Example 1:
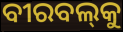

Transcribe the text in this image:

ବୀରବଲ୍‌କୁ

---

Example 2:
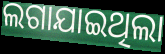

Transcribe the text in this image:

ଲଗାଯାଇଥିଲା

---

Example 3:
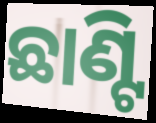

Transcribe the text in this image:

ଛାଣ୍ଟି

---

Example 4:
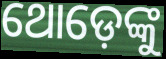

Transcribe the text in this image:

ଥୋଡ଼େଙ୍କୁ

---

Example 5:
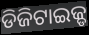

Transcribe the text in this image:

ଡିଜିଟାଇଜ୍ଡ